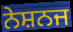
ਨੇਸ਼ਨਜ